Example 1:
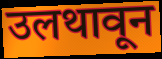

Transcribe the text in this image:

उलथावून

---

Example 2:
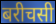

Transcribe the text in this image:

बरीचसी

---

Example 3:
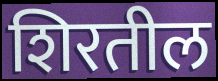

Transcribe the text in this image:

शिरतील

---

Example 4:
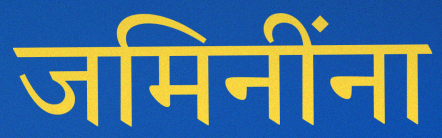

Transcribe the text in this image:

जमिनींना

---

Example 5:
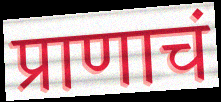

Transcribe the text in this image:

प्राणाचं